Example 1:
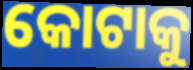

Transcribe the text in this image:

କୋଟାକୁ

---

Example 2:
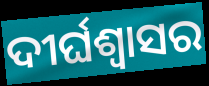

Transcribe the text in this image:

ଦୀର୍ଘଶ୍ବାସର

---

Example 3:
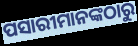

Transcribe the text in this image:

ପସାରୀମାନଙ୍କଠାରୁ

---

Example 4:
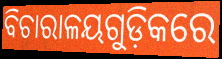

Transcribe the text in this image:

ବିଚାରାଳୟଗୁଡ଼ିକରେ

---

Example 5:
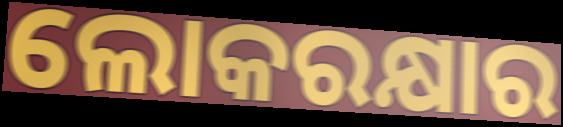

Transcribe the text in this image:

ଲୋକରକ୍ଷାର